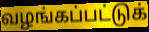
வழங்கப்பட்டுக்